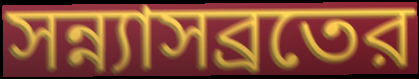
সন্ন্যাসব্রতের